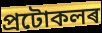
প্ৰটোকলৰ